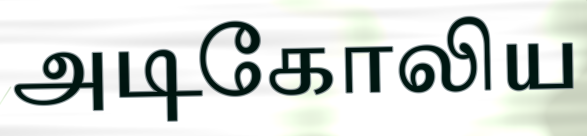
அடிகோலிய